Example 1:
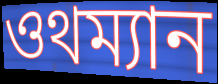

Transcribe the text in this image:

ওথম্যান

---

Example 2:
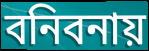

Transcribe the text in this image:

বনিবনায়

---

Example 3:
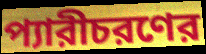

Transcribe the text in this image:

প্যারীচরণের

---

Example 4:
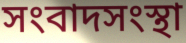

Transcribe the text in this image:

সংবাদসংস্থা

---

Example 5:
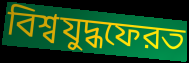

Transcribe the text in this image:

বিশ্বযুদ্ধফেরত